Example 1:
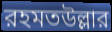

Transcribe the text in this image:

রহমতউল্লার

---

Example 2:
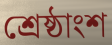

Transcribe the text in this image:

শ্রেষ্ঠাংশ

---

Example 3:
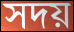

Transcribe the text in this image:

সদয়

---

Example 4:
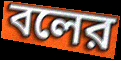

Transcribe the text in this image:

বলের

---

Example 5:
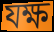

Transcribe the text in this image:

যক্ষ